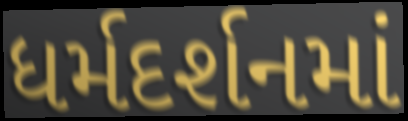
ધર્મદર્શનમાં